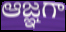
ఆజ్ఞగా